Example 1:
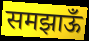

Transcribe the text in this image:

समझाऊँ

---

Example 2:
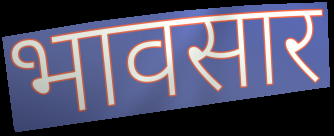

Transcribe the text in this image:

भावसार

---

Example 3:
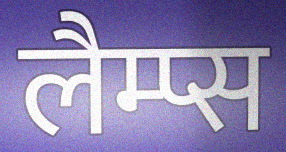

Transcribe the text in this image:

लैम्प्स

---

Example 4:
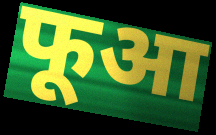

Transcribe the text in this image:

फूआ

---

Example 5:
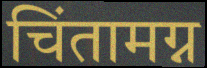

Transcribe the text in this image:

चिंतामग्न